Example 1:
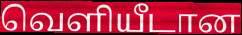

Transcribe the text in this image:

வெளியீடான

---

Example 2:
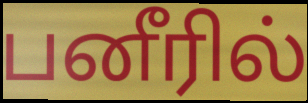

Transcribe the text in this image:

பனீரில்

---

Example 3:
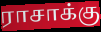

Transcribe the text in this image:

ராசாக்கு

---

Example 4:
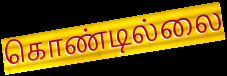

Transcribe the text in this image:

கொண்டில்லை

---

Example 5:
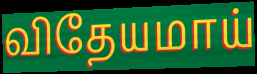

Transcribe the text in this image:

விதேயமாய்